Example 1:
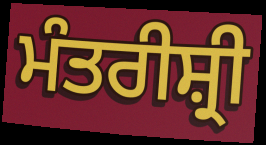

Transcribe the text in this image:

ਮੰਤਰੀਸ਼੍ਰੀ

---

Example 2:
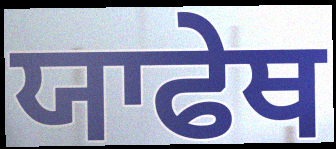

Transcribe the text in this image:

ਯਾਫੇਥ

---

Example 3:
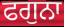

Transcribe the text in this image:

ਫਗੁਨਾ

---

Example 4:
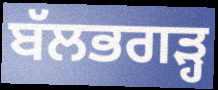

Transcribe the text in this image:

ਬੱਲਭਗੜ੍ਹ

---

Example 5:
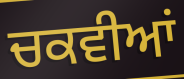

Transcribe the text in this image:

ਚਕਵੀਆਂ